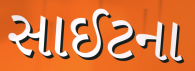
સાઈટના